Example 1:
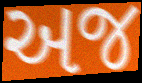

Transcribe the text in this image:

અજ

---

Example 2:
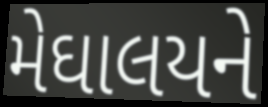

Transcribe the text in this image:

મેઘાલયને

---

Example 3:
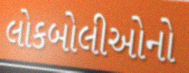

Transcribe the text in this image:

લોકબોલીઓનો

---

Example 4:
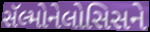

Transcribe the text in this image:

સૅલ્મોનેલોસિસને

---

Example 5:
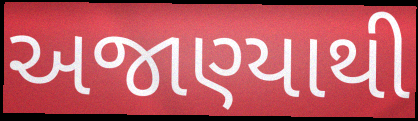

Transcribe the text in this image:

અજાણ્યાથી